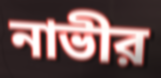
নাভীর